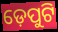
ଡ଼େପୁଟି